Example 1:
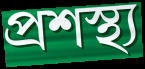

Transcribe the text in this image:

প্ৰশস্থ্য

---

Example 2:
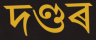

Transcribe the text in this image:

দণ্ডৰ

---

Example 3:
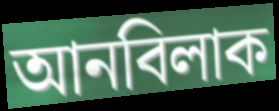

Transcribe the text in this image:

আনবিলাক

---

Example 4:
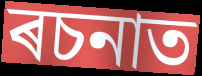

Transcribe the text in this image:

ৰচনাত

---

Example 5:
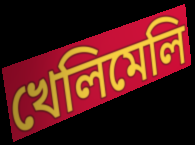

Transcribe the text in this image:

খেলিমেলি